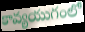
కావ్యయుగంలో